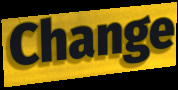
Change